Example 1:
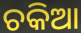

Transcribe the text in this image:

ଚକିଆ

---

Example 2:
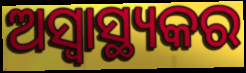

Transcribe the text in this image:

ଅସ୍ବାସ୍ଥ୍ୟକର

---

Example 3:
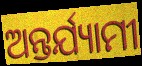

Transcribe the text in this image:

ଅନ୍ତର୍ଯ୍ୟାମୀ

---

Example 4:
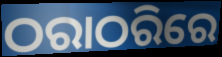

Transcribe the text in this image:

ଠରାଠରିରେ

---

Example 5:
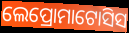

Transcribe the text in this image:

ଲେପ୍ରୋମାଟୋସିସ